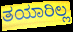
ತಯಾರಿಲ್ಲ